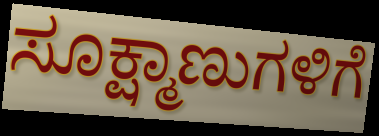
ಸೂಕ್ಷ್ಮಾಣುಗಳಿಗೆ